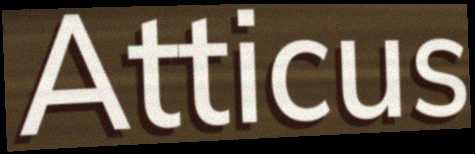
Atticus